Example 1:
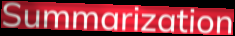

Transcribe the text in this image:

Summarization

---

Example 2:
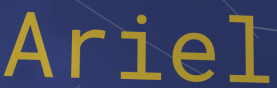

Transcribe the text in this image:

Ariel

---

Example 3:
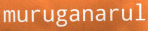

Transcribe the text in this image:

muruganarul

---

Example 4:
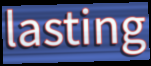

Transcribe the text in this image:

lasting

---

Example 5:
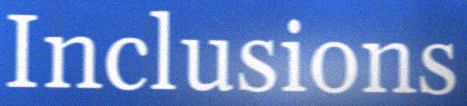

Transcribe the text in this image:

Inclusions